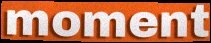
moment